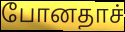
போனதாச்